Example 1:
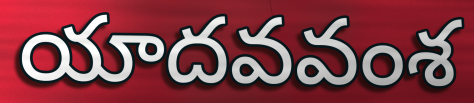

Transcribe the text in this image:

యాదవవంశ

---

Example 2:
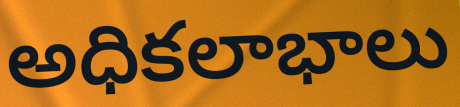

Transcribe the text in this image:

అధికలాభాలు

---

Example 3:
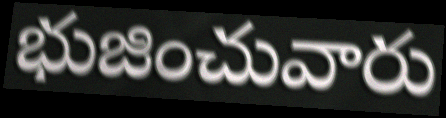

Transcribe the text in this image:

భుజించువారు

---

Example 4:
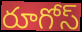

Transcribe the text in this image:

రూగోస్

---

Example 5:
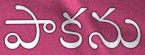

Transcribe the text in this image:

పాకను